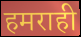
हमराही